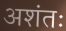
अशंतः